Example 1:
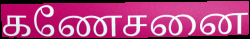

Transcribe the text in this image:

கணேசனை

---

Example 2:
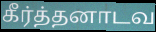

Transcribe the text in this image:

கீர்த்தனாடவ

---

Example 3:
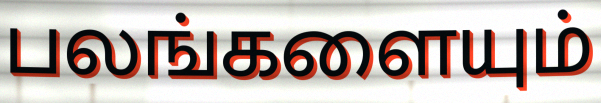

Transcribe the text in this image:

பலங்களையும்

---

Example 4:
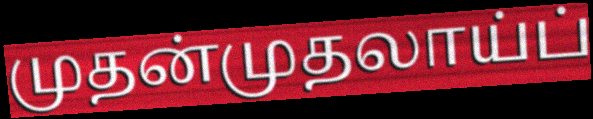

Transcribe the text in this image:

முதன்முதலாய்ப்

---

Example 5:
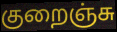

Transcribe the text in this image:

குறைஞ்சு